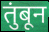
तुंबून